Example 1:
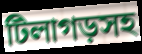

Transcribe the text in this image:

টিলাগড়সহ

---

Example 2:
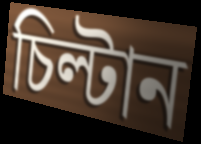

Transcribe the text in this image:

চিল্টান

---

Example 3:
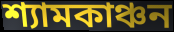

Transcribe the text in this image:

শ্যামকাঞ্চন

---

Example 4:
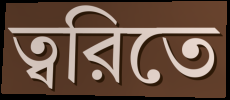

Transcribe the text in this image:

ত্বরিতে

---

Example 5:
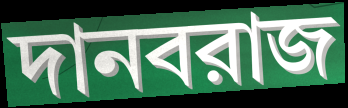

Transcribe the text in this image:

দানবরাজ